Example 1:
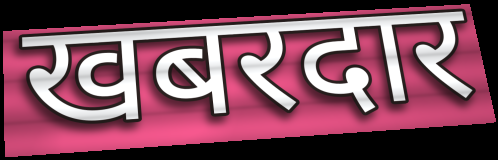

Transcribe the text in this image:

खबरदार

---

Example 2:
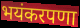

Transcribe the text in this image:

भयंकरपणा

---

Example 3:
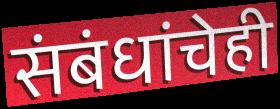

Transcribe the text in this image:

संबंधांचेही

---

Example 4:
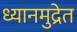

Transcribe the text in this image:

ध्यानमुद्रेत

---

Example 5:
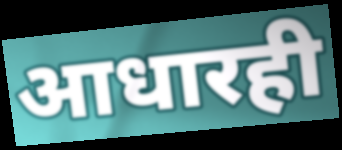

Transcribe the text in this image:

आधारही